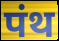
पंथ